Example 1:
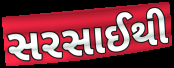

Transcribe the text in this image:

સરસાઈથી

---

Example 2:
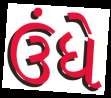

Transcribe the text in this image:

ઉંધે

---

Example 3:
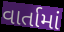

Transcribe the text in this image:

વાર્તામાં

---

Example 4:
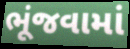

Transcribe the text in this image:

ભૂંજવામાં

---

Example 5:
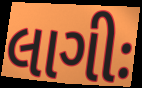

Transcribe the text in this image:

લાગીઃ